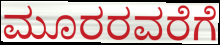
ಮೂರರವರೆಗೆ